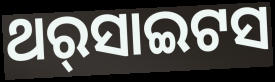
ଥର୍‌ସାଇଟସ